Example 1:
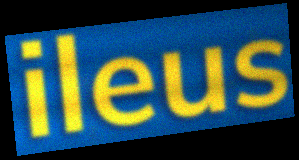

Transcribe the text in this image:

ileus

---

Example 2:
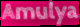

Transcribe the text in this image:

Amulya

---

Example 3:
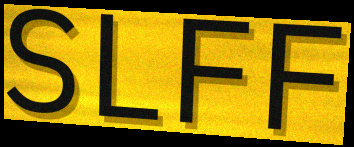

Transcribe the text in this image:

SLFF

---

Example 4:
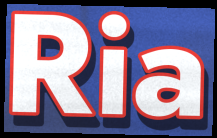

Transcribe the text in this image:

Ria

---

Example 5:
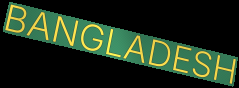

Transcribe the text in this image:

BANGLADESH